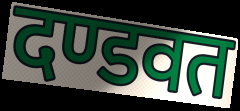
दण्‍डवत